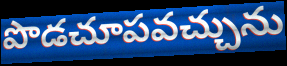
పొడచూపవచ్చును